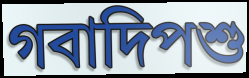
গবাদিপশু